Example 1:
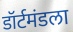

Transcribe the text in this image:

डॉर्टमंडला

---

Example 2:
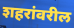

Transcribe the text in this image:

शहरांवरील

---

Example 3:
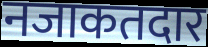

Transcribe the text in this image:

नजाकतदार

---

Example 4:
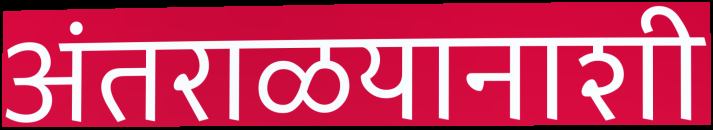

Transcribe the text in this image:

अंतराळयानाशी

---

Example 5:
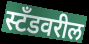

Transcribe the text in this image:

स्टँडवरील